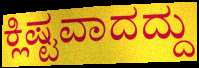
ಕ್ಲಿಷ್ಟವಾದದ್ದು